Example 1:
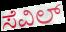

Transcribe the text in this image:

ಸೆವಿಲ್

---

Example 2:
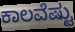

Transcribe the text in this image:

ಕಾಲವೆಷ್ಟು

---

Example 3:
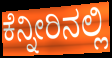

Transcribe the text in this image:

ಕೆನ್ನೀರಿನಲ್ಲಿ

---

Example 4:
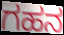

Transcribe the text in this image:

ಗಹನ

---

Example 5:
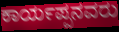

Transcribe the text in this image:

ಕಾರ್ಯಪ್ಪನವರು